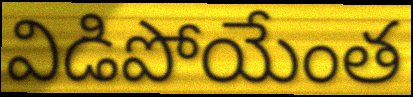
విడిపోయేంత